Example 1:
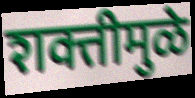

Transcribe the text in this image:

शक्तीमुळे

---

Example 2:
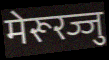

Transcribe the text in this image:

मेरूरज्जु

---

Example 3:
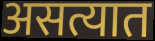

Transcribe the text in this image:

असत्यात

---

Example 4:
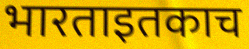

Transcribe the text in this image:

भारताइतकाच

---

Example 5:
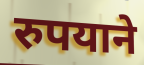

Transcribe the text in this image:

रुपयाने